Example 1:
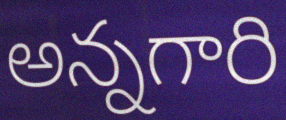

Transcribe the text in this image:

అన్నగారి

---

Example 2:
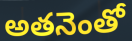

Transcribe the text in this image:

అతనెంతో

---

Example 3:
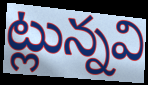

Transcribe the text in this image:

ట్లున్నవి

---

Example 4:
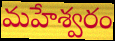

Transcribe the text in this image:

మహేశ్వరం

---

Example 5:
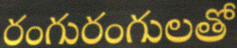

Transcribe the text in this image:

రంగురంగులతో